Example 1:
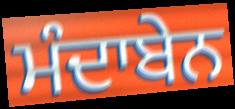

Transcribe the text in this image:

ਮੰਦਾਬੇਨ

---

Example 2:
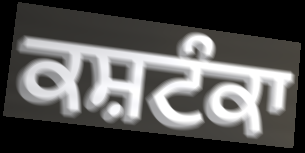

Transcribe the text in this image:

ਕਸ਼ਟੰਕਾ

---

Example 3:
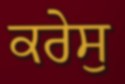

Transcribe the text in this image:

ਕਰੇਸੁ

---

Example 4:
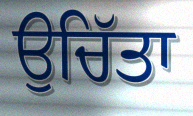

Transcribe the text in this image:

ਉਚਿੱਤਾ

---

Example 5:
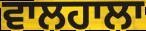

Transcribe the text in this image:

ਵਾਲਹਾਲਾ